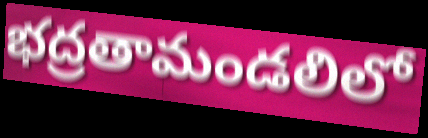
భద్రతామండలిలో